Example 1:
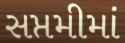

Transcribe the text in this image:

સપ્તમીમાં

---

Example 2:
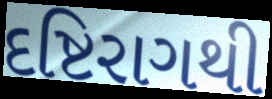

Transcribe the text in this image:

દષ્ટિરાગથી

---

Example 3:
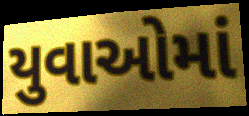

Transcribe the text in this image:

યુવાઓમાં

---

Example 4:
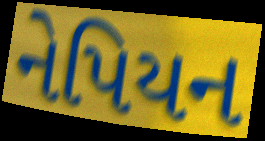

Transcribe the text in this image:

નેપિયન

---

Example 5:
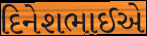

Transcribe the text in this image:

દિનેશભાઈએ